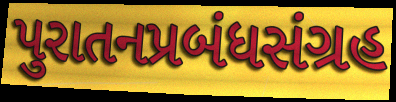
પુરાતનપ્રબંધસંગ્રહ